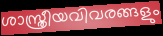
ശാസ്ത്രീയവിവരങ്ങളും